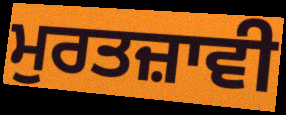
ਮੁਰਤਜ਼ਾਵੀ